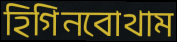
হিগিনবোথাম